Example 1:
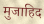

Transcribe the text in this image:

मुजाहिद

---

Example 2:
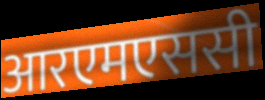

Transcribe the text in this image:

आरएमएससी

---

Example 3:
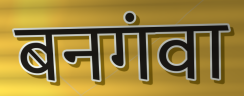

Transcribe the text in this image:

बनगंवा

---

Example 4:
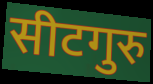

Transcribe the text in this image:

सीटगुरु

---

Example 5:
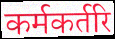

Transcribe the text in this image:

कर्मकर्तरि